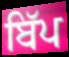
ਬਿੱਪ